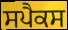
ਸਪੈਕਸ